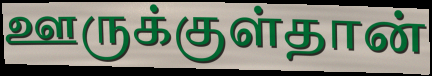
ஊருக்குள்தான்